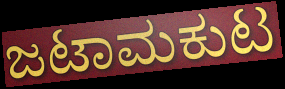
ಜಟಾಮಕುಟ